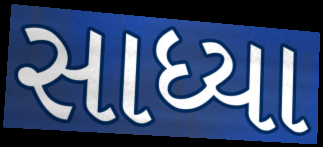
સાધ્યા